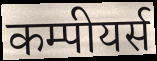
कम्पीयर्स